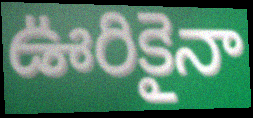
ఊరికైనా